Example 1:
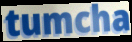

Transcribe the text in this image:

tumcha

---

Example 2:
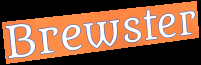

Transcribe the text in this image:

Brewster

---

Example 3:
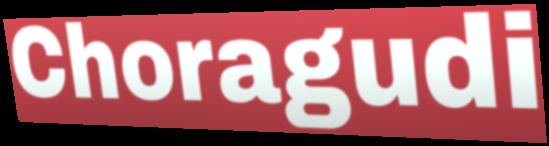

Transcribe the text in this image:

Choragudi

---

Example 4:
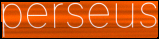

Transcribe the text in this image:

perseus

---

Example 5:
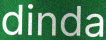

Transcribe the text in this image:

dinda